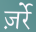
ज़र्रे